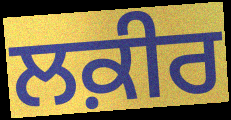
ਲਕ਼ੀਰ